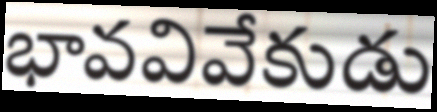
భావవివేకుడు